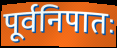
पूर्वनिपातः